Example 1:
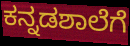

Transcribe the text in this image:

ಕನ್ನಡಶಾಲೆಗೆ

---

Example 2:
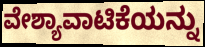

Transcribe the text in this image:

ವೇಶ್ಯಾವಾಟಿಕೆಯನ್ನು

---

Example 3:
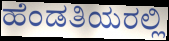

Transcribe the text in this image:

ಹೆಂಡತಿಯರಲ್ಲಿ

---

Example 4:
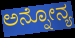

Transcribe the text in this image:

ಅನ್ನೋನ್ಯ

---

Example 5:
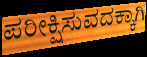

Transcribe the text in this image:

ಪರೀಕ್ಷಿಸುವದಕ್ಕಾಗಿ